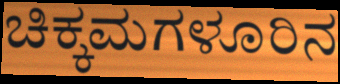
ಚಿಕ್ಕಮಗಳೂರಿನ